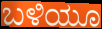
ಬಳಿಯೂ